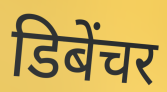
डिबेंचर